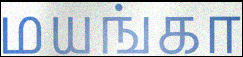
மயங்கா